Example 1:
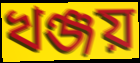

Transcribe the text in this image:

খঞ্জয়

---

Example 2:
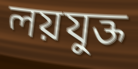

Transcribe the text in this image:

লয়যুক্ত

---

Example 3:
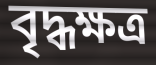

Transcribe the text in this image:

বৃদ্ধক্ষত্র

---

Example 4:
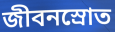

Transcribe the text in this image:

জীবনস্রোত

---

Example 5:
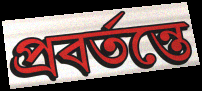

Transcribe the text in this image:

প্রবর্তন্তে